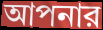
আপনার